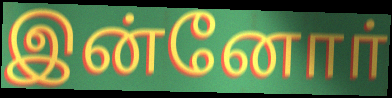
இன்னோர்